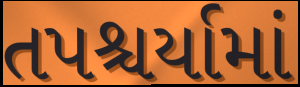
તપશ્ચર્યામાં